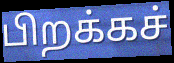
பிறக்கச்